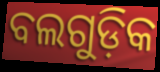
ବଲଗୁଡ଼ିକ